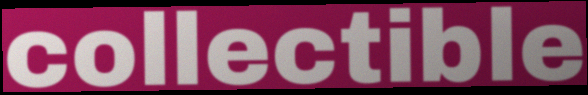
collectible